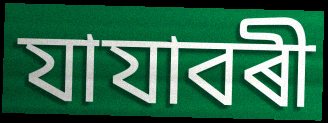
যাযাবৰী